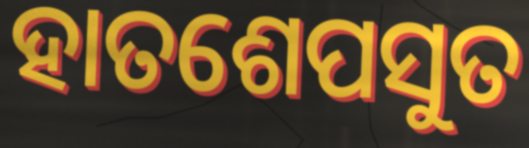
ହାତଶେପସୁତ